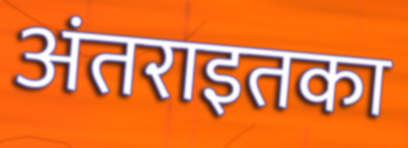
अंतराइतका